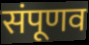
संपूणव